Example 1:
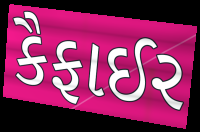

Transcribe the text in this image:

કૈફાઈર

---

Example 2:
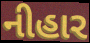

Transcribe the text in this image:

નીહાર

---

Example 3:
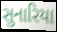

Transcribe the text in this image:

સુનારિયા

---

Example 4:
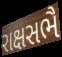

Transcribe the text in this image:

રાક્ષસભૈ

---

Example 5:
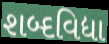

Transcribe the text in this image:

શબ્દવિદ્યા